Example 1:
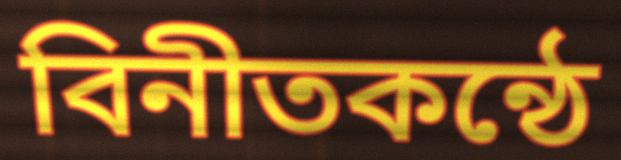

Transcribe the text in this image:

বিনীতকন্ঠে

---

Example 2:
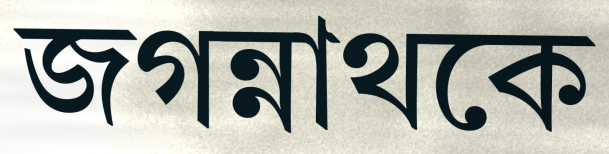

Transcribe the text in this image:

জগন্নাথকে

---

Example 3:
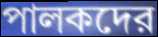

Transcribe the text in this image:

পালকদের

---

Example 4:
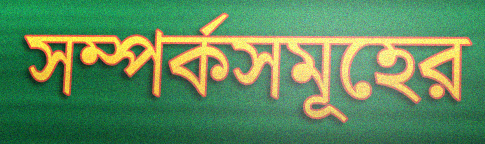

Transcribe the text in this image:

সম্পর্কসমূহের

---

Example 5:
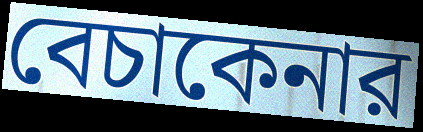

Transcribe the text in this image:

বেচাকেনার